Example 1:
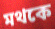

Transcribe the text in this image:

মথকে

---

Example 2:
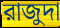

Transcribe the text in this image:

রাজুদা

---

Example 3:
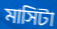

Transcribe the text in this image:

মাসিটা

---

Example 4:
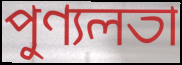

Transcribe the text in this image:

পুণ্যলতা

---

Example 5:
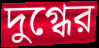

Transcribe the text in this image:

দুগ্ধের